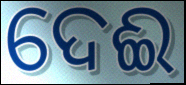
ଦେଈ